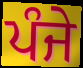
ਪੰਜੇ